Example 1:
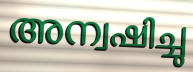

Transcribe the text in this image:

അന്വഷിച്ചു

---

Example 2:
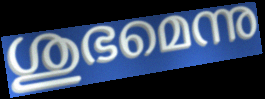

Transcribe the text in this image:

ശുഭമെന്നു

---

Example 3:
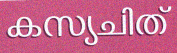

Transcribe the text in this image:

കസ്യചിത്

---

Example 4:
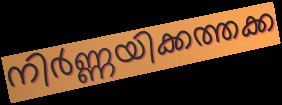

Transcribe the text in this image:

നിർണ്ണയിക്കത്തക്ക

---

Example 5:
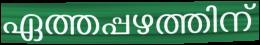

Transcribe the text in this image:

ഏത്തപ്പഴത്തിന്